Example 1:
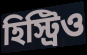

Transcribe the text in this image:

হিস্ট্রিও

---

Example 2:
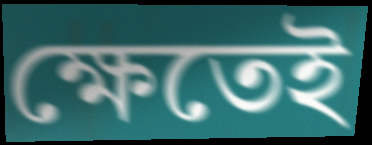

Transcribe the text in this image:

ক্ষেতেই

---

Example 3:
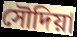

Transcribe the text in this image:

সৌদিয়া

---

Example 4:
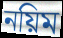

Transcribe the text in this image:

নয়িম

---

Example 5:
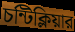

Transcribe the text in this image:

চন্টিক্লিয়ার